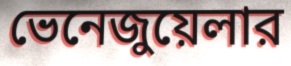
ভেনেজুয়েলার